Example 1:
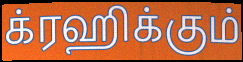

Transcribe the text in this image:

க்ரஹிக்கும்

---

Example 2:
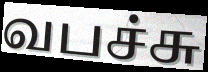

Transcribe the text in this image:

வபச்சு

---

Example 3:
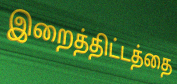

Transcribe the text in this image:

இறைத்திட்டத்தை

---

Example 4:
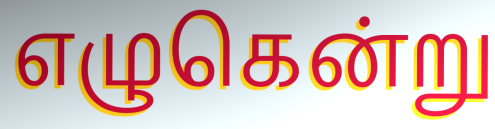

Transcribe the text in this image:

எழுகென்று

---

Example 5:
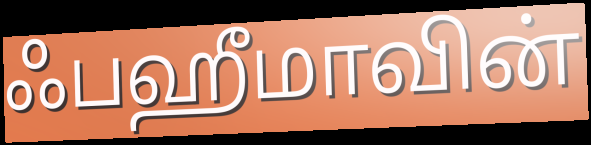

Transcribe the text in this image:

ஃபஹீமாவின்